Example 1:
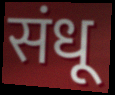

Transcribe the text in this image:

संधू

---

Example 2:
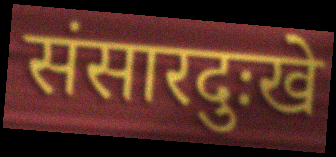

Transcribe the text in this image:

संसारदुःखे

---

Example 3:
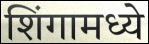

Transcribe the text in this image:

शिंगामध्ये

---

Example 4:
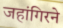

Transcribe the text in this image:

जहांगिरने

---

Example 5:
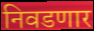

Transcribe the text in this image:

निवडणार